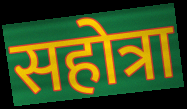
सहोत्रा